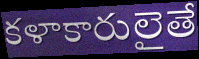
కళాకారులైతే